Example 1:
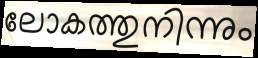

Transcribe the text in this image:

ലോകത്തുനിന്നും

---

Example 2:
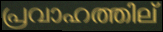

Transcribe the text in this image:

പ്രവാഹത്തില്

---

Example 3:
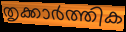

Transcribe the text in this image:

തൃക്കാർത്തിക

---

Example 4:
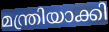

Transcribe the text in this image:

മന്ത്രിയാക്കി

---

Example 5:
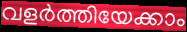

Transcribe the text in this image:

വളർത്തിയേക്കാം